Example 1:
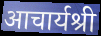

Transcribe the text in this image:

आचार्यश्री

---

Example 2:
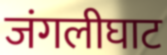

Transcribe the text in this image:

जंगलीघाट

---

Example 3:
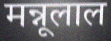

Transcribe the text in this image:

मन्नूलाल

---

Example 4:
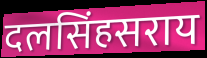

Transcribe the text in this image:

दलसिंहसराय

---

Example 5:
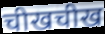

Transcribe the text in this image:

चीखचीख